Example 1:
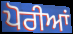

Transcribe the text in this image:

ਪੋਰੀਆਂ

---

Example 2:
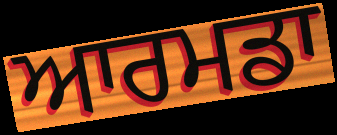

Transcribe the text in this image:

ਆਰਮਡਾ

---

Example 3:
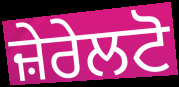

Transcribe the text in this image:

ਜ਼ੇਰੇਲਟੋ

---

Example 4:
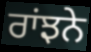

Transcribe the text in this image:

ਰਾਂਝਨੇ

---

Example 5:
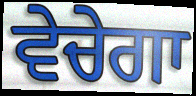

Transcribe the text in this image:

ਵੇਚੇਗਾ